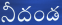
నీదండ